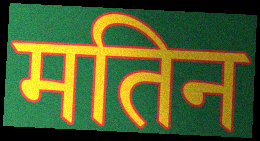
मतिन